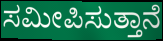
ಸಮೀಪಿಸುತ್ತಾನೆ